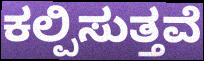
ಕಲ್ಪಿಸುತ್ತವೆ